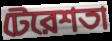
টেরেশতা